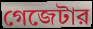
গেজেটার